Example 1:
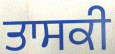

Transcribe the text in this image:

ਤਾਸਕੀ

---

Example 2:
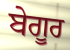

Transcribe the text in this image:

ਬੇਗੂਰ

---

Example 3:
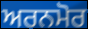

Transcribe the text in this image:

ਅਰਨਮੋਰ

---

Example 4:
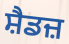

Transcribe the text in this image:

ਸ਼ੈਡਜ਼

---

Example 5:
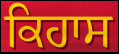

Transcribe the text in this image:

ਕਿਹਾਸ